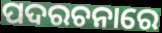
ପଦରଚନାରେ